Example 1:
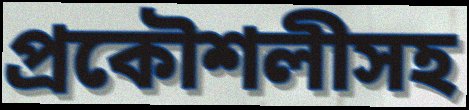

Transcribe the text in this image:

প্রকৌশলীসহ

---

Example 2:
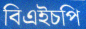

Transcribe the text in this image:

বিএইচপি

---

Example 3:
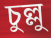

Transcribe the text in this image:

চুল্লু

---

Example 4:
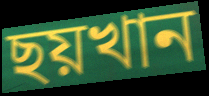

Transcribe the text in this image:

ছয়খান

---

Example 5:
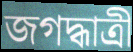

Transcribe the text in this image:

জগদ্ধাত্রী